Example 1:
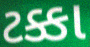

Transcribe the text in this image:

ટક્કા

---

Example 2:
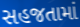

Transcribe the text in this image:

સહજતામાં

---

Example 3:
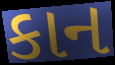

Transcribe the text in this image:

કાન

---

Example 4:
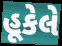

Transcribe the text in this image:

હૂકેલે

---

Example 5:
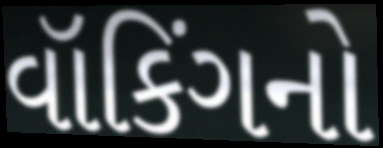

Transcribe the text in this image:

વૉકિંગનો